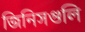
জিনিসগুলি